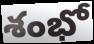
శంభో